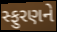
સ્ફુરણને